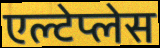
एल्टेप्लेस